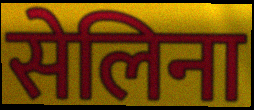
सेलिना